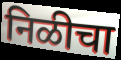
निळीचा